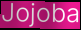
Jojoba